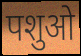
पशुओ